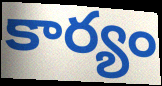
కార్యం